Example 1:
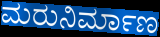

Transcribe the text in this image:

ಮರುನಿರ್ಮಾಣ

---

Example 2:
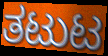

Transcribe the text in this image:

ತಟುಟ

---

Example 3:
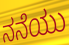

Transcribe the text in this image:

ನನೆಯು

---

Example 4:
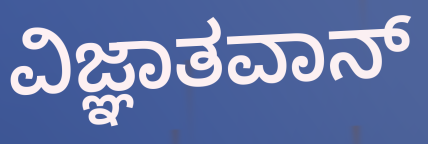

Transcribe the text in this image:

ವಿಜ್ಞಾತವಾನ್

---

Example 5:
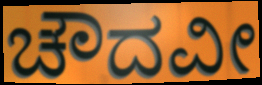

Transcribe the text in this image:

ಚೌದವೀ